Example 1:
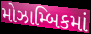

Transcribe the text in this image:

મોઝામ્બિકમાં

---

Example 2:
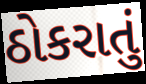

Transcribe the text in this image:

ઠોકરાતું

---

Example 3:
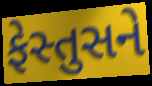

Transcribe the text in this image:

ફેસ્તુસને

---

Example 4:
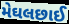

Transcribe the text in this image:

મેઘલછાઈ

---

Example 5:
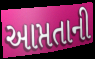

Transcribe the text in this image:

આપ્તતાની